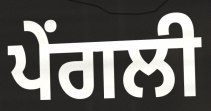
ਪੇਂਗਲੀ